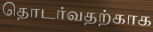
தொடர்வதற்காக